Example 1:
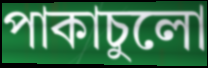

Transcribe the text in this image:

পাকাচুলো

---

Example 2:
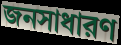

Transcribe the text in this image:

জনসাধারণ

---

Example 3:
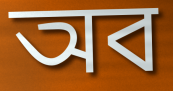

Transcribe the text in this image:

অব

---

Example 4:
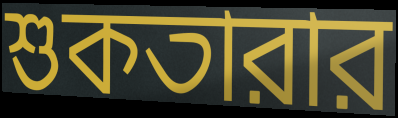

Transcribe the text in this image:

শুকতারার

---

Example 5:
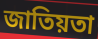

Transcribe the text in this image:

জাতিয়তা